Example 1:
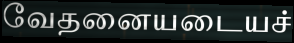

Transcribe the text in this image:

வேதனையடையச்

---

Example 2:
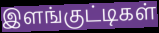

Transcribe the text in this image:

இளங்குட்டிகள்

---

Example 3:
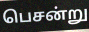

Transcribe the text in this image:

பெசன்று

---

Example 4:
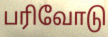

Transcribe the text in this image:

பரிவோடு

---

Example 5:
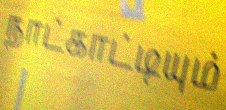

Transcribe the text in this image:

நாட்காட்டியும்